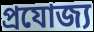
প্ৰযোজ্য